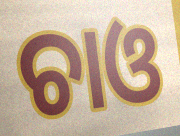
ଚାଓ